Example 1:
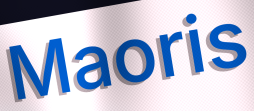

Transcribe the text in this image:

Maoris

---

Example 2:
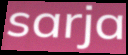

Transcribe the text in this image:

sarja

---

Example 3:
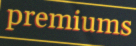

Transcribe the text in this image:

premiums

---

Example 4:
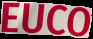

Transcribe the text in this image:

EUCO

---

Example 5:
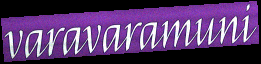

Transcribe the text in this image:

varavaramuni